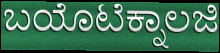
ಬಯೊಟೆಕ್ನಾಲಜಿ